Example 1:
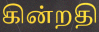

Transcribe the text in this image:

கின்றதி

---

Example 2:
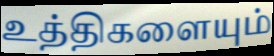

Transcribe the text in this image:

உத்திகளையும்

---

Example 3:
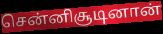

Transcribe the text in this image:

சென்னிசூடினான்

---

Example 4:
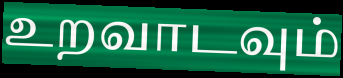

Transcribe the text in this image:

உறவாடவும்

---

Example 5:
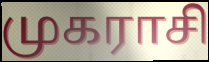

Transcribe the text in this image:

முகராசி